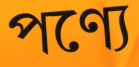
পণ্যে